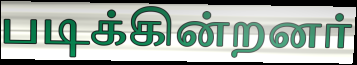
படிக்கின்றனர்